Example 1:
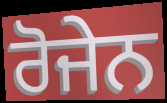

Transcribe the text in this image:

ਰੋਜੇਨ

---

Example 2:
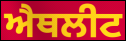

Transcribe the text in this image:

ਐਥਲੀਟ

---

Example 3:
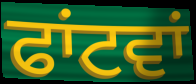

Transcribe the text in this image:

ਫਾਂਟਵਾਂ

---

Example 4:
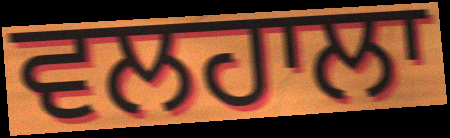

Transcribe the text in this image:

ਵਲਹਾਲਾ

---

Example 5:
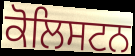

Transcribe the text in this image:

ਕੋਲਿਸਟਨ